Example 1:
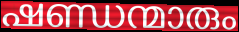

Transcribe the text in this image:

ഷണ്ഡന്മാരും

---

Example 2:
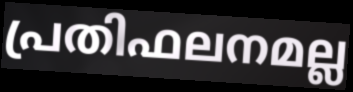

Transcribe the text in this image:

പ്രതിഫലനമല്ല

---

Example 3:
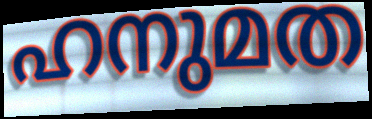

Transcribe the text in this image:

ഹനുമത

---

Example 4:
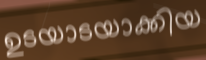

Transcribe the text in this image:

ഉടയാടയാക്കിയ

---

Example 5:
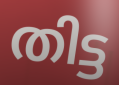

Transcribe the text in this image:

തിട്ട